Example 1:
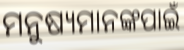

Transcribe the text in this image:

ମନୁଷ୍ୟମାନଙ୍କପାଇଁ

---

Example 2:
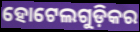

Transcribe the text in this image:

ହୋଟେଲଗୁଡ଼ିକର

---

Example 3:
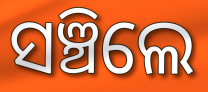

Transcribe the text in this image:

ସଞ୍ଚିଲେ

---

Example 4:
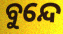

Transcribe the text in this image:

ବୁନ୍ଦେ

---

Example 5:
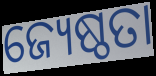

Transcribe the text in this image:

ଜ୍ୟେଷ୍ଠତା